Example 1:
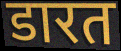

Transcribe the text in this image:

डारत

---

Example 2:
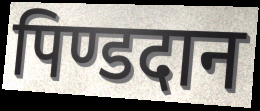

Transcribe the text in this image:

पिण्डदान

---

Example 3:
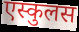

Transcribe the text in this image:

एस्कुलस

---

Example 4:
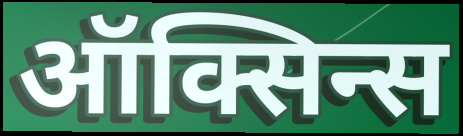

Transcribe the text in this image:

ऑक्सिन्स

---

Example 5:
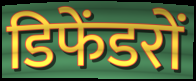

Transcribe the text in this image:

डिफेंडरों